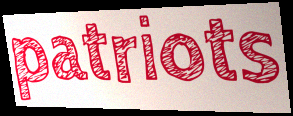
patriots